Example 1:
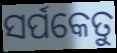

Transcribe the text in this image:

ସର୍ପକେତୁ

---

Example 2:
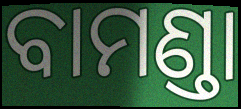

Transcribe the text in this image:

ବାମଣ୍ଡା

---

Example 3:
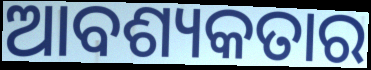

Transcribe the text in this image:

ଆବଶ୍ୟକତାର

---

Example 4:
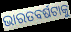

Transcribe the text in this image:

ଭାରତବର୍ଷଟାକୁ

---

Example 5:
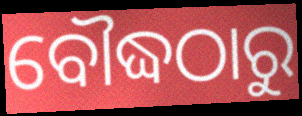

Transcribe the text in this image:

ବୌଦ୍ଧଠାରୁ